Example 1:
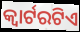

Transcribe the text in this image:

କ୍ୱାର୍ଟରଟିଏ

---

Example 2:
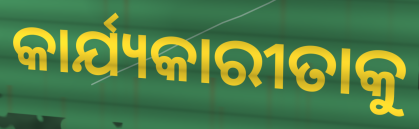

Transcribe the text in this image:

କାର୍ଯ୍ୟକାରୀତାକୁ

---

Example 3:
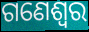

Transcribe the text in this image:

ଗଣେଶ୍ୱର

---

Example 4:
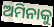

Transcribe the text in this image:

ଅମିନାକୁ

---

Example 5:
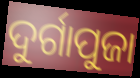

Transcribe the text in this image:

ଦୁର୍ଗାପୁଜା